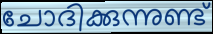
ചോദിക്കുന്നുണ്ട്